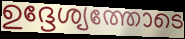
ഉദ്ദേശ്യത്തോടെ